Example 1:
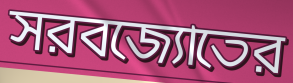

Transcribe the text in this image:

সরবজ্যোতের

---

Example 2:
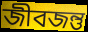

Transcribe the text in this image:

জীবজন্তু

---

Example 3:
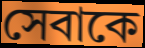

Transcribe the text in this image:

সেবাকে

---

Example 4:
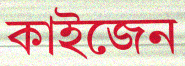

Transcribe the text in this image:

কাইজেন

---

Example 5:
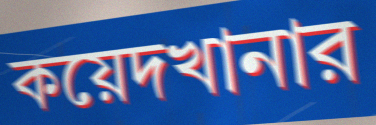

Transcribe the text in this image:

কয়েদখানার